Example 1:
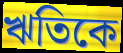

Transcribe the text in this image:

ঋতিকে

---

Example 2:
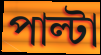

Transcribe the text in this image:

পাল্টা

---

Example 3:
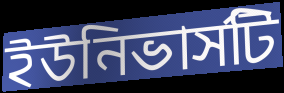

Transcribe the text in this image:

ইউনিভার্সটি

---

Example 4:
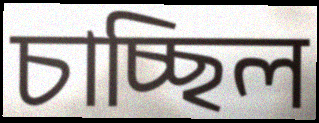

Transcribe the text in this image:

চাচ্ছিল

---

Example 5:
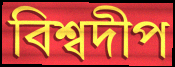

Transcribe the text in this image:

বিশ্বদীপ